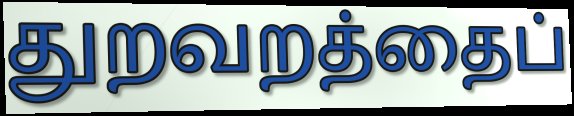
துறவறத்தைப்